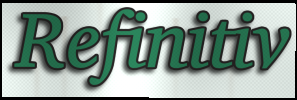
Refinitiv